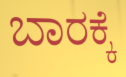
ಬಾರಕ್ಕೆ